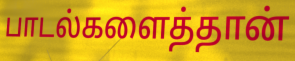
பாடல்களைத்தான்